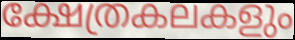
ക്ഷേത്രകലകളും